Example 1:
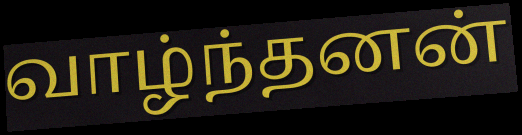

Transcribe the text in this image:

வாழ்ந்தனன்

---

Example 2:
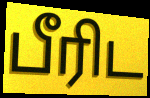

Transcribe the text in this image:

பீரிட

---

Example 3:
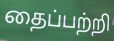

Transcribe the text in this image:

தைப்பற்றி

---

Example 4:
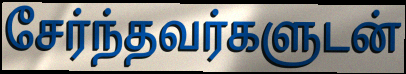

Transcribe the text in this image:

சேர்ந்தவர்களுடன்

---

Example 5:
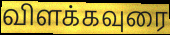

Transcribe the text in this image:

விளக்கவுரை